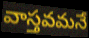
వాస్తవమనే